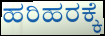
ಹರಿಹರಕ್ಕೆ